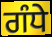
ਗੰਧੇ